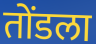
तोंडला